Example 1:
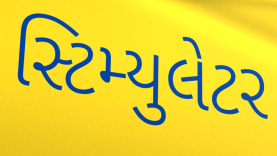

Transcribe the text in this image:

સ્ટિમ્યુલેટર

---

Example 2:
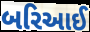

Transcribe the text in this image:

બરિઆઈ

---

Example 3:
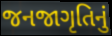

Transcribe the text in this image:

જનજાગૃતિનું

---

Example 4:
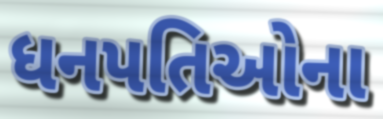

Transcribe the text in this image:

ધનપતિઓના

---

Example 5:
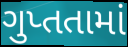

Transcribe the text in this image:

ગુપ્તતામાં